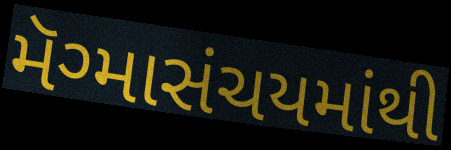
મૅગ્માસંચયમાંથી